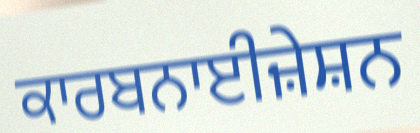
ਕਾਰਬਨਾਈਜ਼ੇਸ਼ਨ